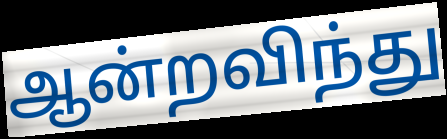
ஆன்றவிந்து